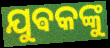
ଯୁଵକଙ୍କୁ